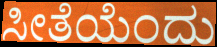
ಸೀತೆಯೆಂದು